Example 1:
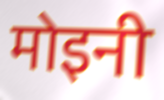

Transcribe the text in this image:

मोइनी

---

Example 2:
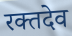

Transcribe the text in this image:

रक्तदेव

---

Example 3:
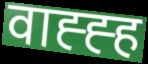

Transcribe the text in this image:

वाह्ह्ह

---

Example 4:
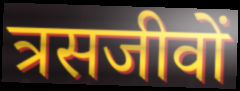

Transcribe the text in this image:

त्रसजीवों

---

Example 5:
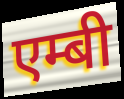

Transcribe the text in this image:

एम्बी